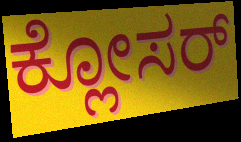
ಕ್ಲೋಸರ್